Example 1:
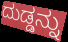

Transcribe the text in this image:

ದುಡ್ಡನ್ನು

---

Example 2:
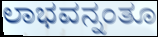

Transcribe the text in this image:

ಲಾಭವನ್ನಂತೂ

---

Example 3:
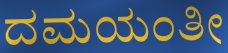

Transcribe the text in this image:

ದಮಯಂತೀ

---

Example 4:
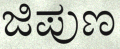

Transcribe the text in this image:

ಜಿಪುಣ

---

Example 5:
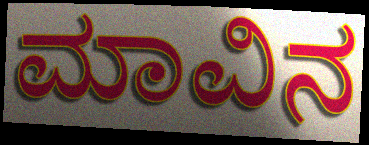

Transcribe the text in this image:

ಮಾವಿನ